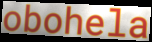
obohela